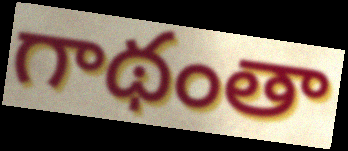
గాథంతా